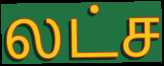
லட்ச